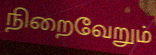
நிறைவேறும்